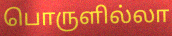
பொருளில்லா